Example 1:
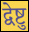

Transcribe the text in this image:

द्वेष्टु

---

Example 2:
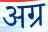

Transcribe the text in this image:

अग्र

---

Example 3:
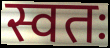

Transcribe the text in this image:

स्वतः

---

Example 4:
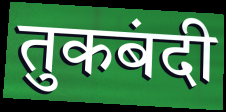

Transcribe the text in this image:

तुकबंदी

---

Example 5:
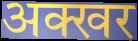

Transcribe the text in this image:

अक्खर